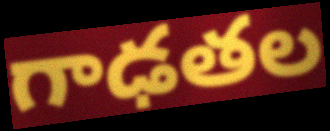
గాఢతల